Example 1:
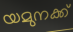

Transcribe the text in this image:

യമുനക്ക്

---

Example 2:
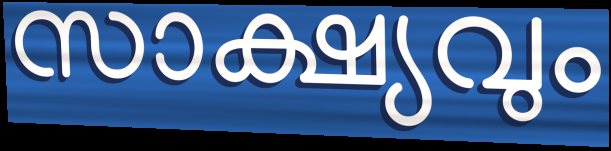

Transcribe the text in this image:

സാക്ഷ്യവും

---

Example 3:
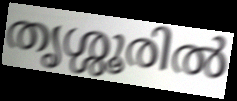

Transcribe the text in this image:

തൃശ്ശൂരിൽ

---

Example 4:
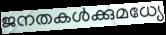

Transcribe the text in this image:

ജനതകൾക്കുമധ്യേ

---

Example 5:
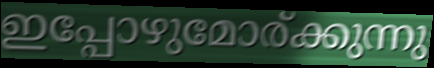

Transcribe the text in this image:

ഇപ്പോഴുമോര്ക്കുന്നു